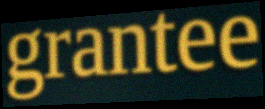
grantee